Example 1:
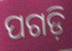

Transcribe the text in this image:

ପଗଡ଼ି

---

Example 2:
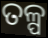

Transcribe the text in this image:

ତଳ୍ପ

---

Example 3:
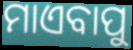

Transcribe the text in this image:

ମାଏବାପୁ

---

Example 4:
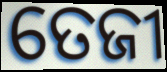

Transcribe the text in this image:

ତେଜୀ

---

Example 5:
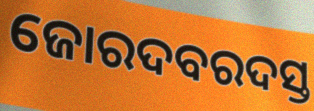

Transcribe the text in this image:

ଜୋରଦବରଦସ୍ତ